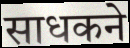
साधकने